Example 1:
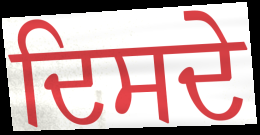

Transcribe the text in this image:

ਦਿਸਦੇ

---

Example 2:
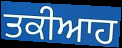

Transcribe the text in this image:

ਤਕੀਆਹ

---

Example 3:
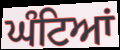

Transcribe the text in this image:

ਘੰਟਿਆਂ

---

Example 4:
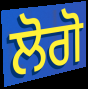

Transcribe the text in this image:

ਲੋਗੋ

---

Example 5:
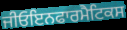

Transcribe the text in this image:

ਜੀਓਇਨਫਾਰਮੈਟਿਕਸ